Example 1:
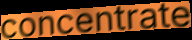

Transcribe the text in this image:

concentrate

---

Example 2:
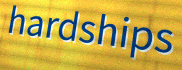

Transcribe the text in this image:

hardships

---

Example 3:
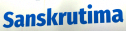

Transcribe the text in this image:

Sanskrutima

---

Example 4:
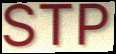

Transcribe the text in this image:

STP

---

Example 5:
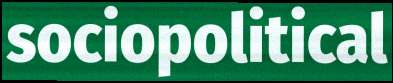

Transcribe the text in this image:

sociopolitical